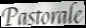
Pastorale